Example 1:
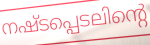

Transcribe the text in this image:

നഷ്ടപ്പെടലിന്റെ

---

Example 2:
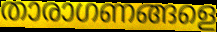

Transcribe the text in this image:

താരാഗണങ്ങളെ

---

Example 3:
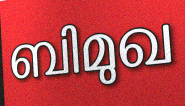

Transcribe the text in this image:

ബിമുഖ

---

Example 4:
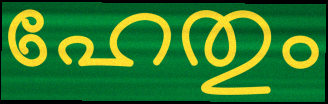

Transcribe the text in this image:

ഹേതും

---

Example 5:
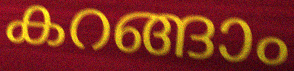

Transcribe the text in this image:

കറങ്ങാം